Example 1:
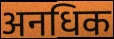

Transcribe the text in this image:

अनधिक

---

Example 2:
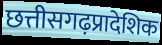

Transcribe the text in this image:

छत्तीसगढ़प्रादेशिक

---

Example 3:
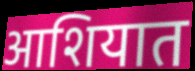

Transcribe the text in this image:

आशियात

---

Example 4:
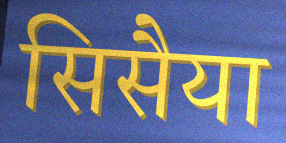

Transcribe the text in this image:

सिसैया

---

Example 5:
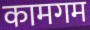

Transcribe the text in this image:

कामगम